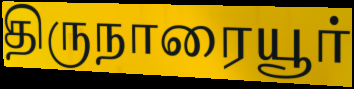
திருநாரையூர்